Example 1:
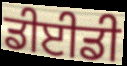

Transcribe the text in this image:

ਡੀਈਡੀ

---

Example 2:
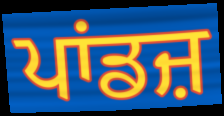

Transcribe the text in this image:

ਪਾਂਡਜ਼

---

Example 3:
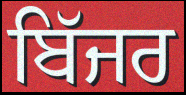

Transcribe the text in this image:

ਬਿੱਜਰ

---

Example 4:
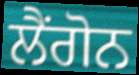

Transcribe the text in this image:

ਲੈਂਗੋਨ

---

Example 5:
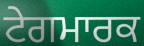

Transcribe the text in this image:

ਟੇਗਮਾਰਕ